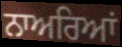
ਨਾਅਰਿਆਂ